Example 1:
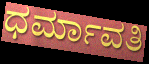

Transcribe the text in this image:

ಧರ್ಮಾವತಿ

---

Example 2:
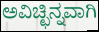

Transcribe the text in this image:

ಅವಿಚ್ಛಿನ್ನವಾಗಿ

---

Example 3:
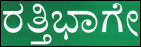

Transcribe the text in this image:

ರತ್ತಿಭಾಗೇ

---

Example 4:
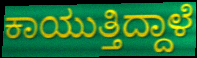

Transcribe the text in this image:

ಕಾಯುತ್ತಿದ್ದಾಳೆ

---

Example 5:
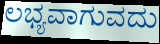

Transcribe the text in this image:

ಲಭ್ಯವಾಗುವದು